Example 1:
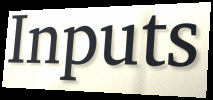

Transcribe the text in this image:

Inputs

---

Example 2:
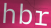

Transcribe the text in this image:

hbr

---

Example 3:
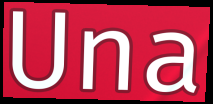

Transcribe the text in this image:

Una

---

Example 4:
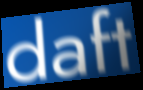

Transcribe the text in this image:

daft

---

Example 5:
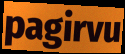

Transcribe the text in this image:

pagirvu